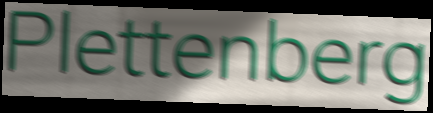
Plettenberg